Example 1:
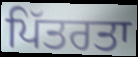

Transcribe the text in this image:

ਪਿੱਤਰਤਾ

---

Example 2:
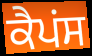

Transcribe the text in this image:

ਕੈਪਂਸ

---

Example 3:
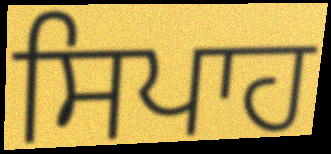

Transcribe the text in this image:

ਸਿਪਾਹ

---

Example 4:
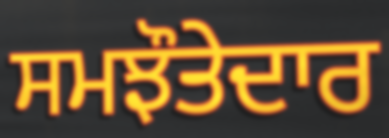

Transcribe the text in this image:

ਸਮਝੌਤੇਦਾਰ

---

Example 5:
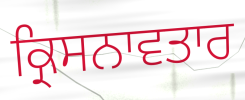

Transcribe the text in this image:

ਕ੍ਰਿਸਨਾਵਤਾਰ